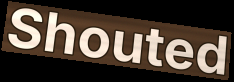
Shouted